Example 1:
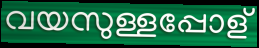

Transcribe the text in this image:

വയസുള്ളപ്പോള്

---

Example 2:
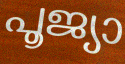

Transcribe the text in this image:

പൂജ്യാ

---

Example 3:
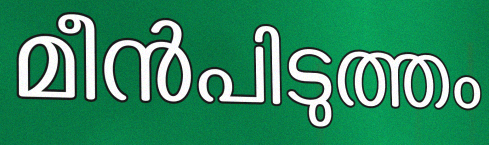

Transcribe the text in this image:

മീൻപിടുത്തം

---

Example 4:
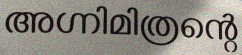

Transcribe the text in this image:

അഗ്നിമിത്രന്റെ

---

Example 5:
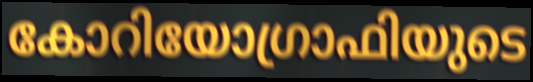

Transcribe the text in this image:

കോറിയോഗ്രാഫിയുടെ